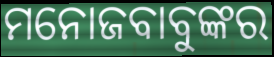
ମନୋଜବାବୁଙ୍କର